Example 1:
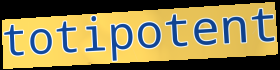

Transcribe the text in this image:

totipotent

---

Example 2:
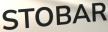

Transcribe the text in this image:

STOBAR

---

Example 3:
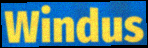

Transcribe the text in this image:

Windus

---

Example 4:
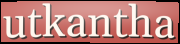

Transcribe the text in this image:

utkantha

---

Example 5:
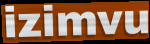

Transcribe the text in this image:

izimvu